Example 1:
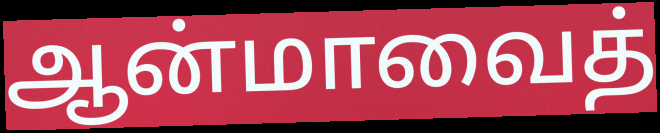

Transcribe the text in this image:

ஆன்மாவைத்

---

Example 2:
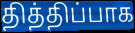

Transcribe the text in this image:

தித்திப்பாக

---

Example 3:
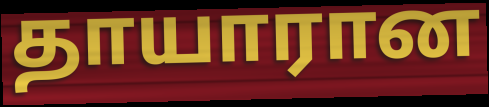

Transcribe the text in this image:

தாயாரான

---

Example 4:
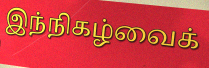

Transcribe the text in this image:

இந்நிகழ்வைக்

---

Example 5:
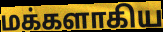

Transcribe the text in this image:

மக்களாகிய